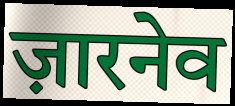
ज़ारनेव